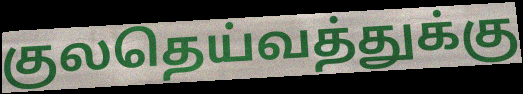
குலதெய்வத்துக்கு